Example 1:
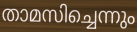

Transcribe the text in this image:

താമസിച്ചെന്നും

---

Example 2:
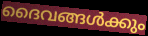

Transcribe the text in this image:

ദൈവങ്ങൾക്കും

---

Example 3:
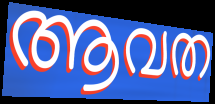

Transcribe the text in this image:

ആവത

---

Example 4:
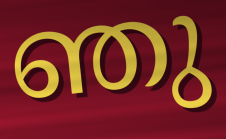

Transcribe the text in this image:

ഞു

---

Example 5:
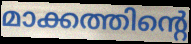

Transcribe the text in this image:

മാക്കത്തിന്റെ